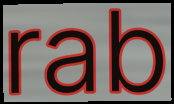
rab